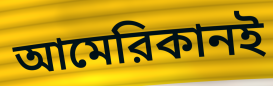
আমেরিকানই